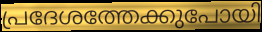
പ്രദേശത്തേക്കുപോയി